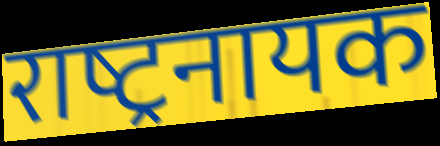
राष्ट्रनायक